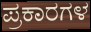
ಪ್ರಕಾರಗಳ